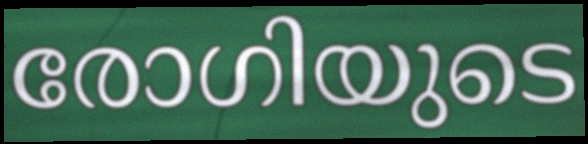
രോഗിയുടെ